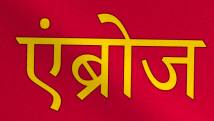
एंब्रोज